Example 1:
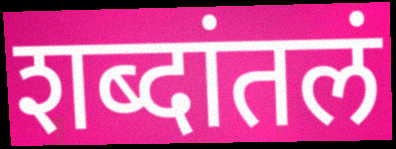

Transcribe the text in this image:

शब्दांतलं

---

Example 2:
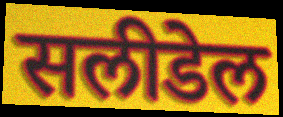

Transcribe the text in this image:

सलीडेल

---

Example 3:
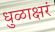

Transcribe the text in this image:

धुळाक्षरं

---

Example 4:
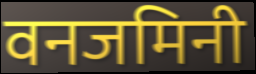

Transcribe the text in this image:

वनजमिनी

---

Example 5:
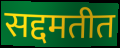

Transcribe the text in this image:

सद्दमतीत